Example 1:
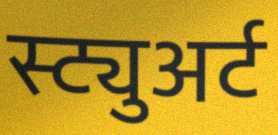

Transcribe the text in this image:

स्ट्युअर्ट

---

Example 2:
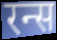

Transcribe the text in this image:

रन्स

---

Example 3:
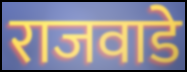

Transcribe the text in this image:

राजवाडे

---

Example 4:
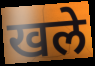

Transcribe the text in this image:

खले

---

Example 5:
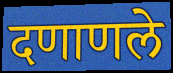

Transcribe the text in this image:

दणाणले